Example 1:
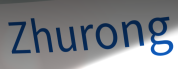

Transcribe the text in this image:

Zhurong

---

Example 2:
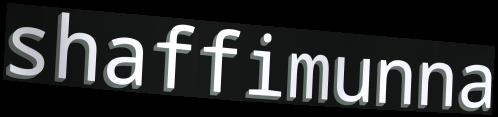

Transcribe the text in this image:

shaffimunna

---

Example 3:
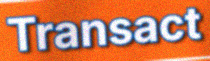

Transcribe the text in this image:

Transact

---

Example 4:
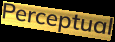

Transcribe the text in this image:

Perceptual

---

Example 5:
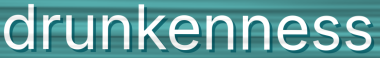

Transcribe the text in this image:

drunkenness